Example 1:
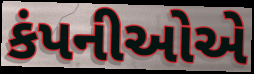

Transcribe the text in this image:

કંપનીઓએ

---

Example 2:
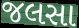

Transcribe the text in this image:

જલસા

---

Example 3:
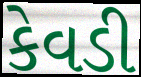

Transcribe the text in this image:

કેવડી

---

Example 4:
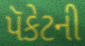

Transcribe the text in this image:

પૅકેટની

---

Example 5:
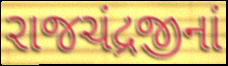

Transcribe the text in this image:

રાજચંદ્રજીનાં